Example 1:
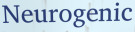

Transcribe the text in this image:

Neurogenic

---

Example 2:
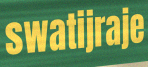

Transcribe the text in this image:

swatijraje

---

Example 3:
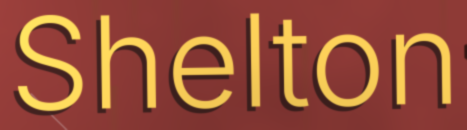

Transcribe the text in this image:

Shelton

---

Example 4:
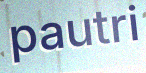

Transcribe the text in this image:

pautri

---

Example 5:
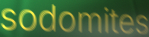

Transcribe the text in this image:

sodomites